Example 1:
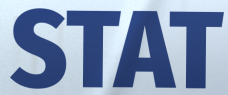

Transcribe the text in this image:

STAT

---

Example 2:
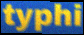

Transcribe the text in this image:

typhi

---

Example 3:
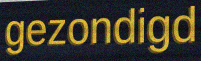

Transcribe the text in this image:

gezondigd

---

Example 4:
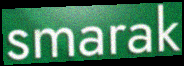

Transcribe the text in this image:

smarak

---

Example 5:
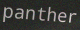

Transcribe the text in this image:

panther